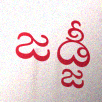
జడ్జీ